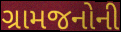
ગ્રામજનોની